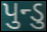
પુન્ડુ